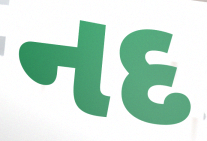
નદ